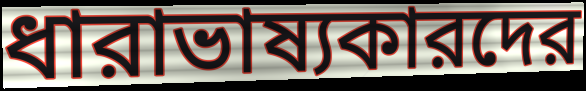
ধারাভাষ্যকারদের